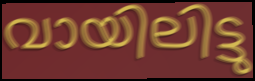
വായിലിട്ടു